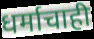
धर्माचाही